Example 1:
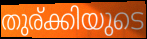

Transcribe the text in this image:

തുര്ക്കിയുടെ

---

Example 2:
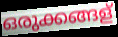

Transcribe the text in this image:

ഒരുക്കങ്ങള്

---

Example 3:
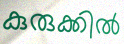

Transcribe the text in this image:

കുരുക്കിൽ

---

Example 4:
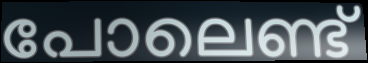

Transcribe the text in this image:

പോലെണ്ട്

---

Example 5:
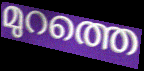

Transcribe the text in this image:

മുറത്തെ